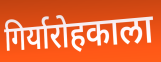
गिर्यारोहकाला